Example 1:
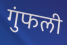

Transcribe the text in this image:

गुंफली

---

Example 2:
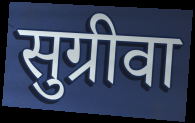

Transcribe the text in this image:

सुग्रीवा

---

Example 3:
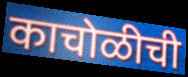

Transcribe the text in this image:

काचोळीची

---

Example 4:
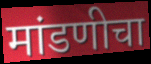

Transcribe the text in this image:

मांडणीचा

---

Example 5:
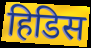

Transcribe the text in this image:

हिडिस